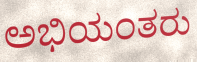
ಅಭಿಯಂತರು